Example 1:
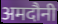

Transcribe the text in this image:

अमदौनी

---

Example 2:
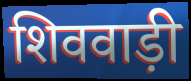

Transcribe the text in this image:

शिववाड़ी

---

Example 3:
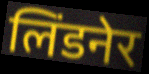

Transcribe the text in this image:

लिंडनेर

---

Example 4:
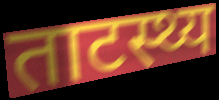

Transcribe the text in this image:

ताटस्थ्य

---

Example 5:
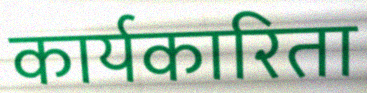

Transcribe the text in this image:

कार्यकारिता